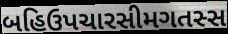
બહિઉપચારસીમગતસ્સ